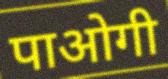
पाओगी